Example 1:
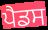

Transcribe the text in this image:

ਪੈਡਸ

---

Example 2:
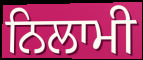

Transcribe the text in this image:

ਨਿਲਾਮੀ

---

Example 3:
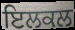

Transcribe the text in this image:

ਇਲਕਲ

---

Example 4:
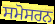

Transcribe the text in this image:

ਸਮੋਸਰਨ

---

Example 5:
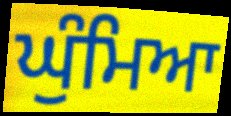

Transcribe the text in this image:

ਘੁੰਮਿਆ